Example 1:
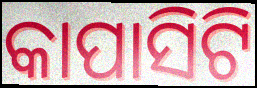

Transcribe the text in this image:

କାପାସିଟି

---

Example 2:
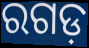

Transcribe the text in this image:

ରଗଡ଼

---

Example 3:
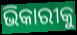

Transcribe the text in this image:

ଭିକାରୀକୁ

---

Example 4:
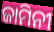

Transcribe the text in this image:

ଜାମିନୀ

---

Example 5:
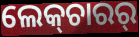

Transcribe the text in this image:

ଲେକ୍‍ଚାରର୍